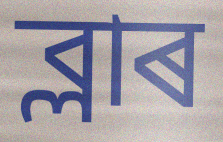
ব্লাৰ